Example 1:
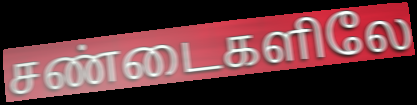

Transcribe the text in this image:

சண்டைகளிலே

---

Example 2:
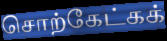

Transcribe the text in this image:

சொற்கேட்கக்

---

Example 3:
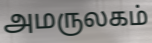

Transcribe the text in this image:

அமருலகம்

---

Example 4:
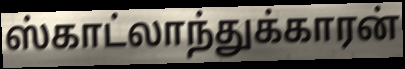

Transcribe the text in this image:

ஸ்காட்லாந்துக்காரன்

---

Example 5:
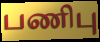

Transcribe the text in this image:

பணிபு